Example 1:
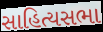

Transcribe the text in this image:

સાહિત્યસભા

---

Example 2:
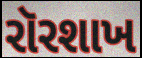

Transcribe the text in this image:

રૉરશાખ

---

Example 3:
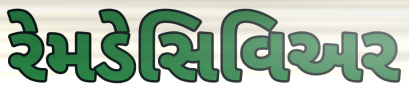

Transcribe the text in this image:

રેમડેસિવિઅર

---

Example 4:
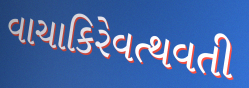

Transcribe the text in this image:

વાચાકિરેવત્થવતી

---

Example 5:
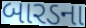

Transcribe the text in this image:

બારડના